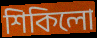
শিকিলো